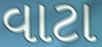
વાટા